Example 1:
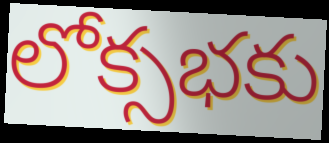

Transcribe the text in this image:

లోక్సభకు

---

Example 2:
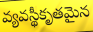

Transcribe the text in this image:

వ్యవస్థీకృతమైన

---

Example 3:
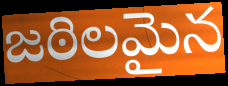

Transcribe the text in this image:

జఠిలమైన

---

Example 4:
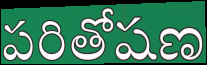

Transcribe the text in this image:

పరితోషణ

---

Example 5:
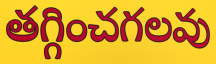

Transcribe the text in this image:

తగ్గించగలవు